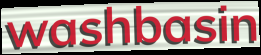
washbasin